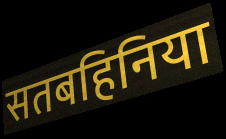
सतबहिनिया